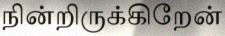
நின்றிருக்கிறேன்